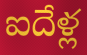
ఐదేళ్ల